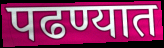
पढण्यात